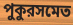
পুকুরসমেত